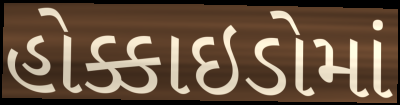
હોક્કાઇડોમાં